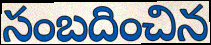
సంబదించిన